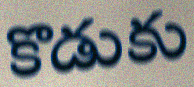
కొడుకు